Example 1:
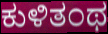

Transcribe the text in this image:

ಕುಳಿತಂಥ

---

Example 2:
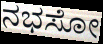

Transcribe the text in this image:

ನಭಸೋ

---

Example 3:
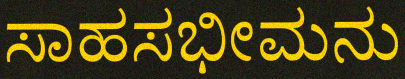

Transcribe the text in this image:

ಸಾಹಸಭೀಮನು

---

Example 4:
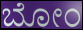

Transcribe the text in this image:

ಬೋಂ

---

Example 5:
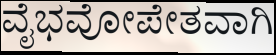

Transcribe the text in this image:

ವೈಭವೋಪೇತವಾಗಿ